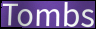
Tombs